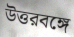
উত্তরবঙ্গে